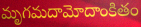
మృగమదామోదాంకితం